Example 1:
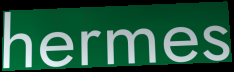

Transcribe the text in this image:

hermes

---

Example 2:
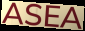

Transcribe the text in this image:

ASEA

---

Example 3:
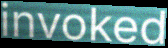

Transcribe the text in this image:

invoked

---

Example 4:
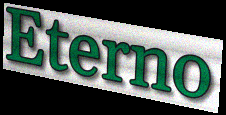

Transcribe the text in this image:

Eterno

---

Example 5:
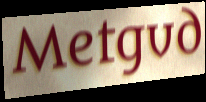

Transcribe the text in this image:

Metgud